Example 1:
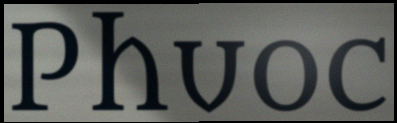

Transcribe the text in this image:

Phuoc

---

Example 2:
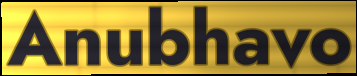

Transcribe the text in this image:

Anubhavo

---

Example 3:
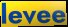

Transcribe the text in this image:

levee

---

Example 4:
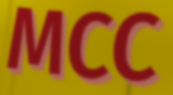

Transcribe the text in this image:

MCC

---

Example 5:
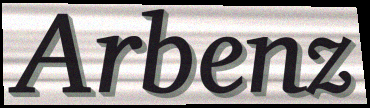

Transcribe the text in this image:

Arbenz